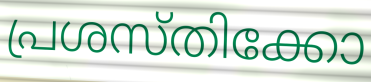
പ്രശസ്തിക്കോ